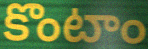
కొంటాం